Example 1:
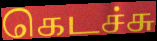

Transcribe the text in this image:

கெடச்சு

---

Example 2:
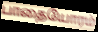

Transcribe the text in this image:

பாதையோரம்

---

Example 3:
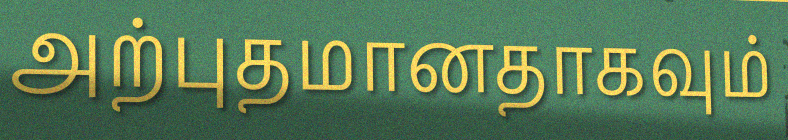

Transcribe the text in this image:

அற்புதமானதாகவும்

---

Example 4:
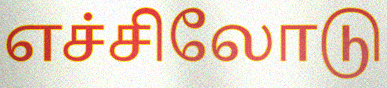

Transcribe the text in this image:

எச்சிலோடு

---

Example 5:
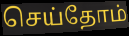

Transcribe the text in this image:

செய்தோம்